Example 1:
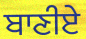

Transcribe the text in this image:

ਬਾਣੀਏ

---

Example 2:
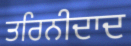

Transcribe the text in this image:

ਤਰਿਨੀਦਾਦ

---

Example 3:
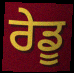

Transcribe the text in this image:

ਰੇਡੂ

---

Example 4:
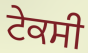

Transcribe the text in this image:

ਟੇਕਸੀ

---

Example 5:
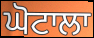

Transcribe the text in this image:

ਘੋਟਾਲਾ